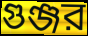
গুঞ্জর